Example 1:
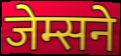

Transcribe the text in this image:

जेम्सने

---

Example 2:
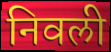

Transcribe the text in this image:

निवली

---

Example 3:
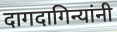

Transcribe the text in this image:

दागदागिन्यांनी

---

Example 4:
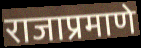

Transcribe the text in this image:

राजाप्रमाणे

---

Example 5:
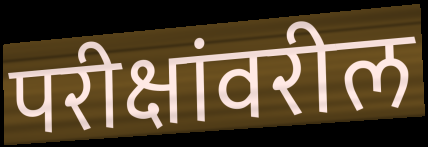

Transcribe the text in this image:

परीक्षांवरील